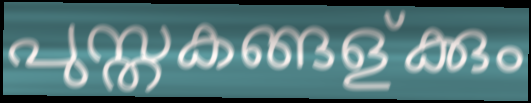
പുസ്തകങ്ങള്ക്കും